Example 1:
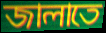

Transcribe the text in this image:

জালাতে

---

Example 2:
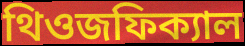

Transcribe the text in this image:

থিওজফিক্যাল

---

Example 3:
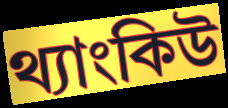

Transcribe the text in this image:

থ্যাংকিউ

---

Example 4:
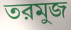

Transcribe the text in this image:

তরমুজ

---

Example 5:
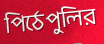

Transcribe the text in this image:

পিঠেপুলির